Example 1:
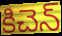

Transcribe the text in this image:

కిచెన్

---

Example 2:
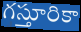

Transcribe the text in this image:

గస్తూరికా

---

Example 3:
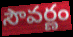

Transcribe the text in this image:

సౌవర్ణం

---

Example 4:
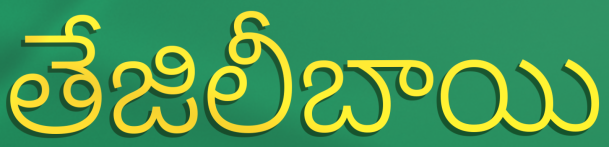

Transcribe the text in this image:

తేజిలీబాయి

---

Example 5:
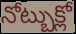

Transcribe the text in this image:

నోట్బుక్లో